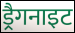
ड्रैगनाइट